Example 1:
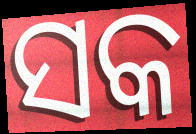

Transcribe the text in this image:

ସକ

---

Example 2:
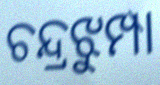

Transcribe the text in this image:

ଚନ୍ଦ୍ରଝୁମ୍ପା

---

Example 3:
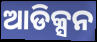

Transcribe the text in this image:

ଆଡିକ୍ସନ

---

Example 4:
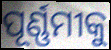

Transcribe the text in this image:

ପୂର୍ଣ୍ଣମୀକୁ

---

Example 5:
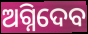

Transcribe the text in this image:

ଅଗ୍ନିଦେବ